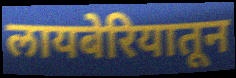
लायबेरियातून